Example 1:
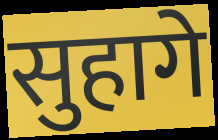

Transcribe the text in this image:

सुहागे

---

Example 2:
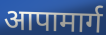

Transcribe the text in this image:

आपामार्ग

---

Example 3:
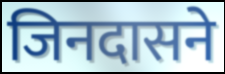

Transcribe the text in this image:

जिनदासने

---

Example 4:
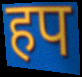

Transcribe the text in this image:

हप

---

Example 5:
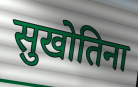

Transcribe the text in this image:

सुखोतिना